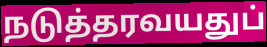
நடுத்தரவயதுப்